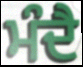
ਮੰਦੈ